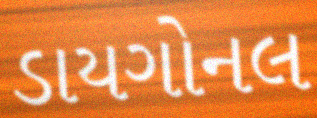
ડાયગોનલ